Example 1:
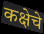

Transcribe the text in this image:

कक्षेचे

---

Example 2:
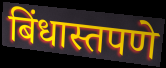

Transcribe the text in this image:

बिंधास्तपणे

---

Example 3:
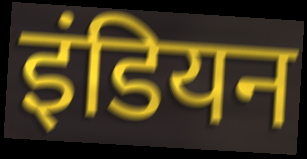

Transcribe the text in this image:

इंडियन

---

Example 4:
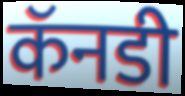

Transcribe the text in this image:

कॅनडी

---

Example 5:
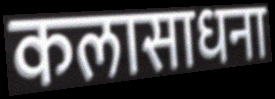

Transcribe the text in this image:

कलासाधना